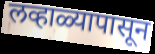
लव्हाळ्यापासून